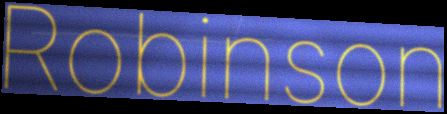
Robinson